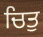
ਚਿਤੁ